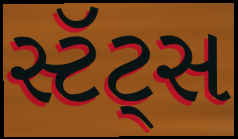
સ્ટૅટ્સ